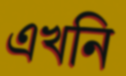
এখনি